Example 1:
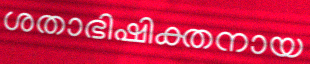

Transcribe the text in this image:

ശതാഭിഷിക്തനായ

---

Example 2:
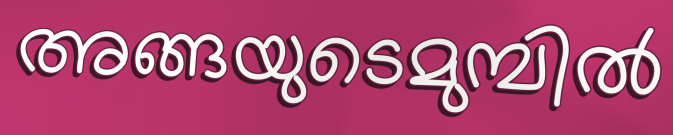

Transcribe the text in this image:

അങ്ങയുടെമുമ്പിൽ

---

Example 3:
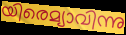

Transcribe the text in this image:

യിരെമ്യാവിന്നു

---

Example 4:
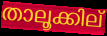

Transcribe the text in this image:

താലൂക്കില്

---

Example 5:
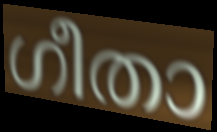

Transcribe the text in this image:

ഗീതാ